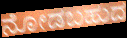
ನೋಡಬಹುದ